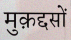
मुक़द्दसों